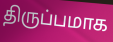
திருப்பமாக